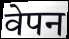
वेपन